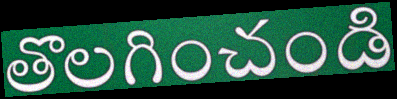
తొలగించండి